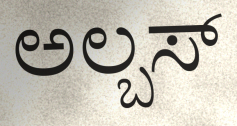
ಅಲ್ಬಸ್